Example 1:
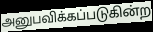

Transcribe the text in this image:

அனுபவிக்கப்படுகின்ற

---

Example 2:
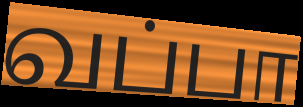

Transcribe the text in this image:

வப்பா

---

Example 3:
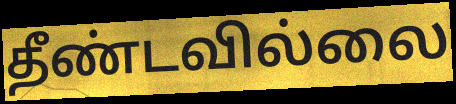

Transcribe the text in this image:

தீண்டவில்லை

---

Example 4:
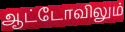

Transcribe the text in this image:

ஆட்டோவிலும்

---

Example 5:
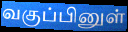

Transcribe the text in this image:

வகுப்பினுள்